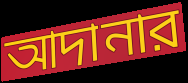
আদানার